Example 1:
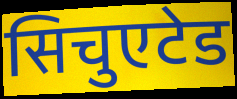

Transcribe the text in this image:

सिचुएटेड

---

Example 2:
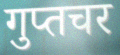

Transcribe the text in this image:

गुप्तचर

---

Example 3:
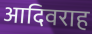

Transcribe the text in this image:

आदिवराह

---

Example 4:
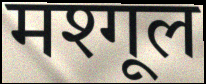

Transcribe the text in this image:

मश्गूल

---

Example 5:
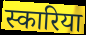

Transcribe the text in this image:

स्कारिया